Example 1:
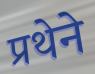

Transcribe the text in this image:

प्रथेने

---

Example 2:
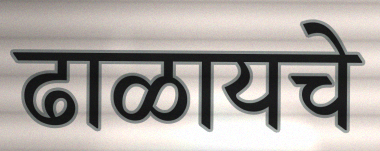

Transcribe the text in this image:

ढाळायचे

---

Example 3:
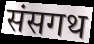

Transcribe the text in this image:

संसगथ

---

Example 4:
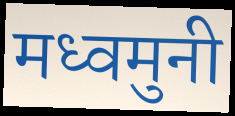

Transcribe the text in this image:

मध्वमुनी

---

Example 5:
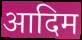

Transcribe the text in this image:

आदिम